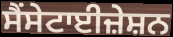
ਸੈਂਸੇਟਾਈਜ਼ੇਸ਼ਨ